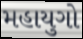
મહાયુગો